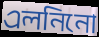
এলনিনো